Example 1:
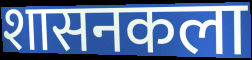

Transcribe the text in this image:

शासनकला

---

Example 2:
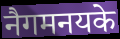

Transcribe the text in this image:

नैगमनयके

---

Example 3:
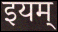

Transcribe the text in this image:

इयम्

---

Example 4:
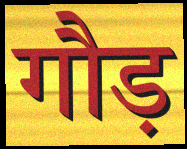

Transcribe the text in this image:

गौड़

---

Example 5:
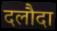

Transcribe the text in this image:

दलौदा